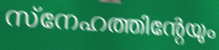
സ്‌നേഹത്തിന്റേയും